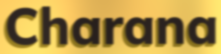
Charana